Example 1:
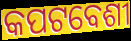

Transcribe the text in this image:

କପଟବେଶୀ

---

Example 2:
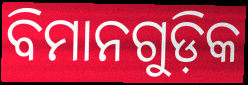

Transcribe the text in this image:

ବିମାନଗୁଡ଼ିକ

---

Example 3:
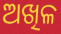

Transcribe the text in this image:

ଅଖିଳ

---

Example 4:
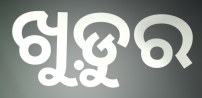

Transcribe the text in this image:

ଖୁଡ଼ୁର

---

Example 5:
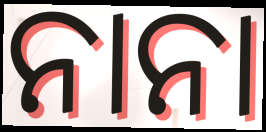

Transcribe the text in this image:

ନାନା